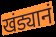
खंड्यानं